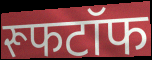
रूफटॉफ